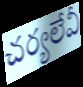
చర్యలేవీ